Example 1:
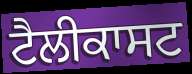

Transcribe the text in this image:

ਟੈਲੀਕਾਸਟ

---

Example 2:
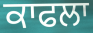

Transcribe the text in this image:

ਕਾਫਲਾ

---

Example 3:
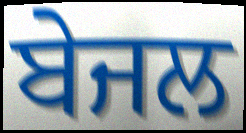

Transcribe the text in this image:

ਬੇਜਲ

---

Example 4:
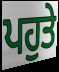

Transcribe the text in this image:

ਪਹੁਤੇ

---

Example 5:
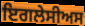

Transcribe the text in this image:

ਇਗਲੇਸੀਅਸ